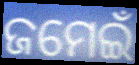
ଜମେଇଁ